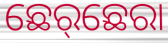
ଛେର୍‌ଛେରା